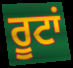
ਰੂਟਾਂ